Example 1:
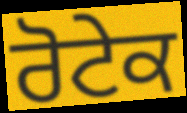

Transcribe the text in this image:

ਰੋਟੇਕ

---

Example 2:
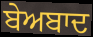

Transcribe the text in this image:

ਬੇਅਬਾਦ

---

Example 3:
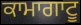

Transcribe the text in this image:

ਕਾਮਾਗਾਟੂ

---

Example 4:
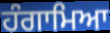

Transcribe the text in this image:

ਹੰਗਾਮਿਆ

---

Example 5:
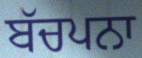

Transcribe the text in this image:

ਬੱਚਪਨਾ